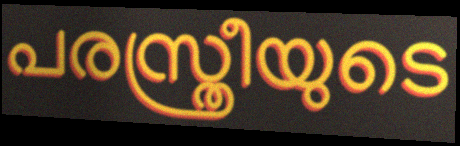
പരസ്ത്രീയുടെ